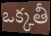
ఒక్కతీ